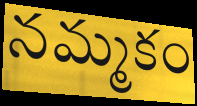
నమ్మకం